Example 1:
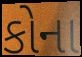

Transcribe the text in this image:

કોના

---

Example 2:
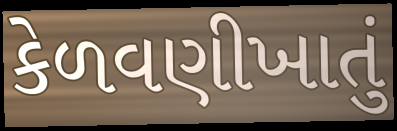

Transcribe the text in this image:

કેળવણીખાતું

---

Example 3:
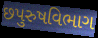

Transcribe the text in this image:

છપુરુષવિભાગ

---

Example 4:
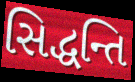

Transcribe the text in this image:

સિદ્ધન્તિ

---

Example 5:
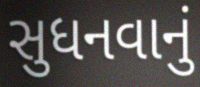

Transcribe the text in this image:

સુધનવાનું